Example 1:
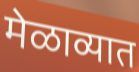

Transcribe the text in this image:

मेळाव्यात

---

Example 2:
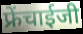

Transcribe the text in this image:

फ्रेंचाईजी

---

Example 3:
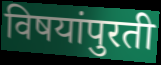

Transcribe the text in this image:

विषयांपुरती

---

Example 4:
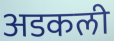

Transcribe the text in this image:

अडकली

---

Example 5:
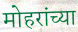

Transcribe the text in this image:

मोहरांच्या